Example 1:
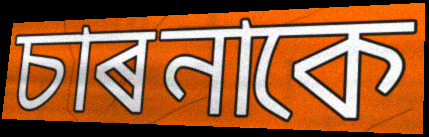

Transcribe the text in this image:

চাৰনাকে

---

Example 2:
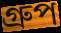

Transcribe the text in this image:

গ্ৰুপ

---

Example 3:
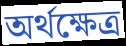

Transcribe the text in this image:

অৰ্থক্ষেত্ৰ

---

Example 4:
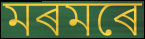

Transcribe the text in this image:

মৰমৰে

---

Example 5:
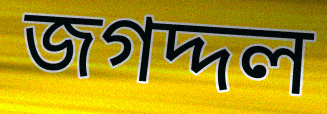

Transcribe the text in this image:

জগদ্দল